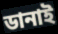
ডানাই